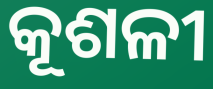
କୂଶଳୀ